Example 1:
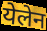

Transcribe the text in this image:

येलेन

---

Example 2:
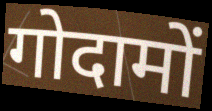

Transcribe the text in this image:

गोदामों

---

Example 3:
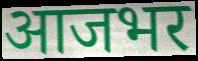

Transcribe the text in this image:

आजभर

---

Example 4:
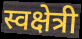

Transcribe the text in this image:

स्वक्षेत्री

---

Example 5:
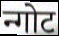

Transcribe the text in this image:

न्गोट